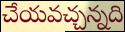
చేయవచ్చన్నది